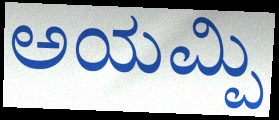
ಅಯಮ್ಪಿ